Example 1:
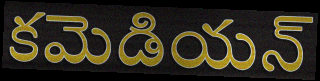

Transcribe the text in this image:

కమెడియన్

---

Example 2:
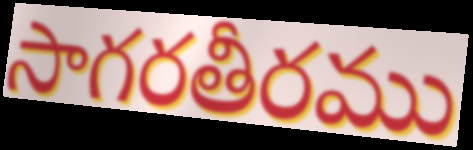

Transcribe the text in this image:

సాగరతీరము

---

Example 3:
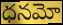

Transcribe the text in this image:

ధనమో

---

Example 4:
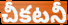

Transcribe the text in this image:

చీకటనీ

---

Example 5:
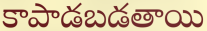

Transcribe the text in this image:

కాపాడబడతాయి